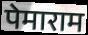
पेमाराम